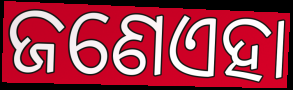
ଜଣେଏହା